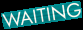
WAITING